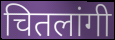
चितलांगी